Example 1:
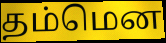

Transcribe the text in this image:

தம்மென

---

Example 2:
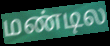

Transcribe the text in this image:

மண்டில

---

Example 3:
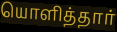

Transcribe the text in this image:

யொளித்தார்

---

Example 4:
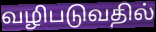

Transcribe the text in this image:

வழிபடுவதில்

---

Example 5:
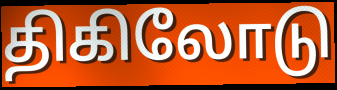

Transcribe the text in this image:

திகிலோடு